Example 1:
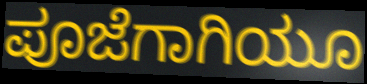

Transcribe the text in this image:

ಪೂಜೆಗಾಗಿಯೂ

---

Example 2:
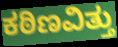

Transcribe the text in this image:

ಕಠಿಣವಿತ್ತು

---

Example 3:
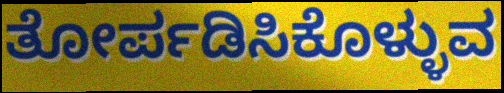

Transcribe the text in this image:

ತೋರ್ಪಡಿಸಿಕೊಳ್ಳುವ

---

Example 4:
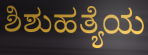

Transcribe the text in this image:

ಶಿಶುಹತ್ಯೆಯ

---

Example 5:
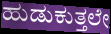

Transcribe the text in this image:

ಹುಡುಕುತ್ತಲೇ